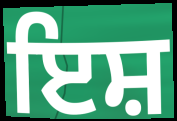
ਇਸ਼